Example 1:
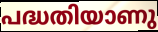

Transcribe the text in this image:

പദ്ധതിയാണു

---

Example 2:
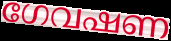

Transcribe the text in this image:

ഗേവഷണ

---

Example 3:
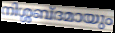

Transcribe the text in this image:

നിശ്ശബ്ദമായും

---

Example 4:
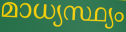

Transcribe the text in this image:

മാധ്യസ്ഥ്യം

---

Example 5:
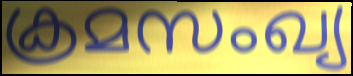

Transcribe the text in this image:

ക്രമസംഖ്യ